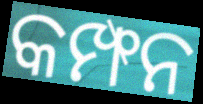
କମ୍ଫନ